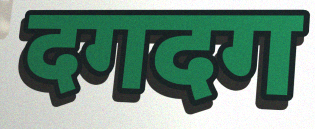
दगदग